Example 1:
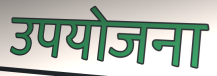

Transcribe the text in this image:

उपयोजना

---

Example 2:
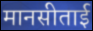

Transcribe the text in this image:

मानसीताई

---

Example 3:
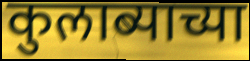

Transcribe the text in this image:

कुलाब्याच्या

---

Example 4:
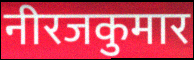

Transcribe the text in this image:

नीरजकुमार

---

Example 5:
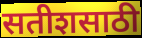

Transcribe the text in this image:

सतीशसाठी